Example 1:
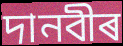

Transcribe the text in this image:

দানবীৰ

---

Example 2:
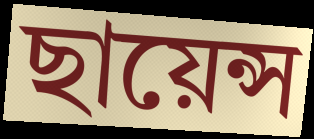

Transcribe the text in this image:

ছায়েন্স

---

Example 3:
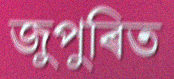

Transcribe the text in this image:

জুপুৰিত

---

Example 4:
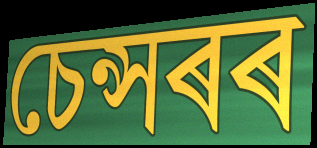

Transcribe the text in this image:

চেন্সৰৰ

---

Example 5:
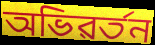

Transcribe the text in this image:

অভিৱৰ্তন